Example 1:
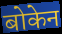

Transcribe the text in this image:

बोकेन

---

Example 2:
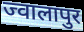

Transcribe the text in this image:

ज्वालापुर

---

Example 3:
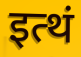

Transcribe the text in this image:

इत्थं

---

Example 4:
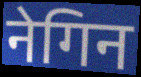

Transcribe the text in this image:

नेगिन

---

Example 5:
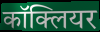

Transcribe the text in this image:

कॉक्लियर